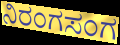
ನಿರಂಗಸಂಗ